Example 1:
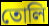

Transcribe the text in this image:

তোলি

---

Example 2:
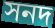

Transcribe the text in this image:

সনদ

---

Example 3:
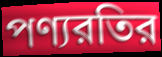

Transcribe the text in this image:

পণ্যরতির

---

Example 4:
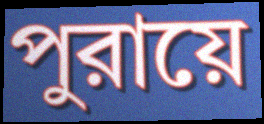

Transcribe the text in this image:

পুরায়ে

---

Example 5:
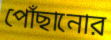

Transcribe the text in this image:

পোঁছানোর